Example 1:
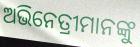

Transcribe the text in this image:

ଅଭିନେତ୍ରୀମାନଙ୍କୁ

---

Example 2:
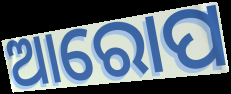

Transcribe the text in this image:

ଆରୋପ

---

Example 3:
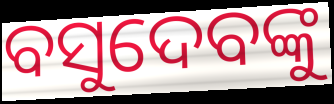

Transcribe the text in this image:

ବସୁଦେବଙ୍କୁ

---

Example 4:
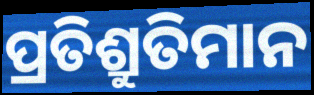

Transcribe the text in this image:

ପ୍ରତିଶ୍ରୁତିମାନ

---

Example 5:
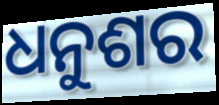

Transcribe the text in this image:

ଧନୁଶର